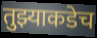
तुझ्याकडेच